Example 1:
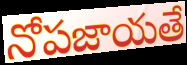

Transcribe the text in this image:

నోపజాయతే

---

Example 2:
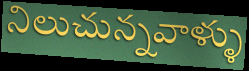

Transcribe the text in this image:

నిలుచున్నవాళ్ళు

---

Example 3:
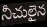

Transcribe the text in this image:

నీచులైన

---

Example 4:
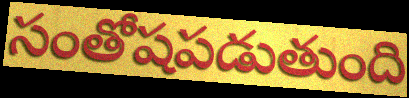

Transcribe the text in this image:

సంతోషపడుతుంది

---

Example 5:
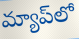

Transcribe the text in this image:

మ్యాప్‌లో